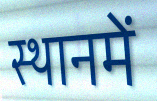
स्थानमें